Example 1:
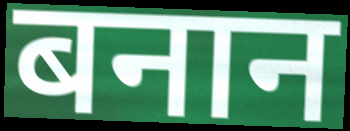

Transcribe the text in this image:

बनान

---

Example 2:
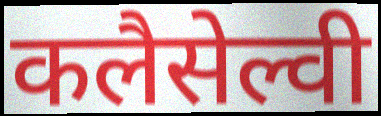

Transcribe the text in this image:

कलैसेल्वी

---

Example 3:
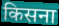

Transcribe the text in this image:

किसना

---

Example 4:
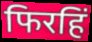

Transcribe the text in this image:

फिरहिं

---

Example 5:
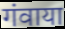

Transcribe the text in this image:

गंवाया